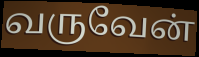
வருவேன்